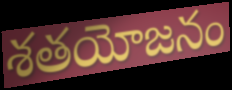
శతయోజనం